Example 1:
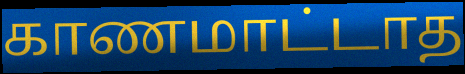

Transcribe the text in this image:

காணமாட்டாத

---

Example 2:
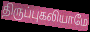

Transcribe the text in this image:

திருப்புகலியாமே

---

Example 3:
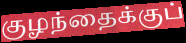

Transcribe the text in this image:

குழந்தைக்குப்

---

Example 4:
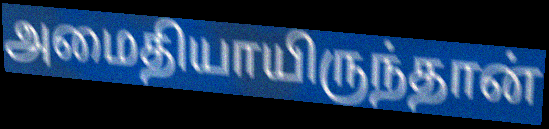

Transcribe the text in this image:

அமைதியாயிருந்தான்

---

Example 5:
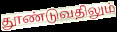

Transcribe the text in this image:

தூண்டுவதிலும்